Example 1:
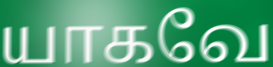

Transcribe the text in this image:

யாகவே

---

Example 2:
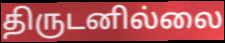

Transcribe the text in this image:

திருடனில்லை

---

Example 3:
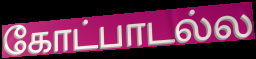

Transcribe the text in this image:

கோட்பாடல்ல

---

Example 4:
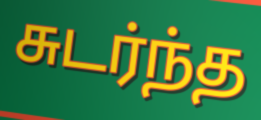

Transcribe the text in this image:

சுடர்ந்த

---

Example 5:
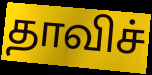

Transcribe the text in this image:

தாவிச்